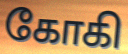
கோகி